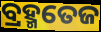
ବ୍ରହ୍ମତେଜ